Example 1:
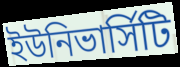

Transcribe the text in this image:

ইউনিভার্সিটি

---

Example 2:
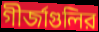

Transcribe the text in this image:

গীর্জাগুলির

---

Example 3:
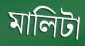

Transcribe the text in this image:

মালিটা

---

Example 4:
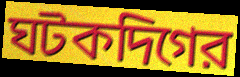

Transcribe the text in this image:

ঘটকদিগের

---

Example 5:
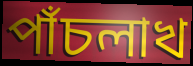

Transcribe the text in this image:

পাঁচলাখ